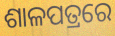
ଶାଳପତ୍ରରେ